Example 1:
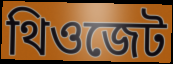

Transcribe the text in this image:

থিওজেট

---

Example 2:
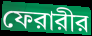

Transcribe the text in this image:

ফেরারীর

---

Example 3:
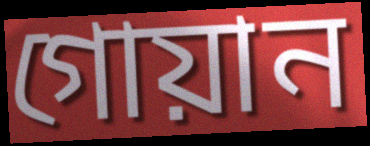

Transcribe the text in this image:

গোয়ান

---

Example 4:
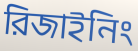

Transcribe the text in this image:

রিজাইনিং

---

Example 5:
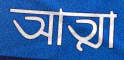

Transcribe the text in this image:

আত্মা